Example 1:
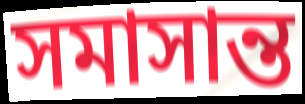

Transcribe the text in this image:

সমাসান্ত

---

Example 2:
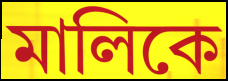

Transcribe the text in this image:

মালিকে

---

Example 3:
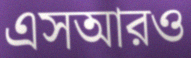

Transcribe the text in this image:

এসআরও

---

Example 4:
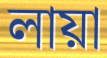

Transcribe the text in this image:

লায়া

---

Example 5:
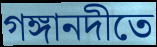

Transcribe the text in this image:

গঙ্গানদীতে